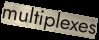
multiplexes